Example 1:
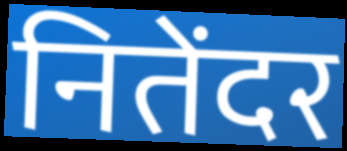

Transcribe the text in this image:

नितेंदर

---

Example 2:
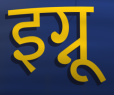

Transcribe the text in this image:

इग्नू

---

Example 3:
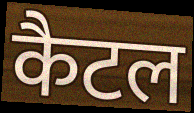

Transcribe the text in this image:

कैटल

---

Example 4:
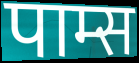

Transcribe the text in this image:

पाम्स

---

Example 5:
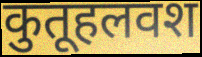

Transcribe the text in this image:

कुतूहलवश